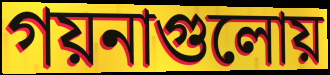
গয়নাগুলোয়